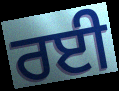
ਰਈ